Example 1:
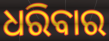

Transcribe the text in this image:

ଧରିବାର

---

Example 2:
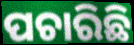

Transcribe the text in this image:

ପଚାରିଛି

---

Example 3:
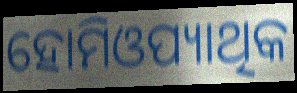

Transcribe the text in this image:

ହୋମିଓପ୍ୟାଥିକ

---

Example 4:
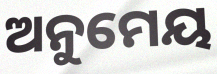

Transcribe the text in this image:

ଅନୁମେୟ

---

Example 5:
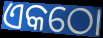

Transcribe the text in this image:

ଏକଠୋ